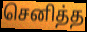
செனித்த